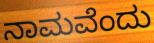
ನಾಮವೆಂದು